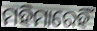
ମହିମାରେହିଁ